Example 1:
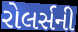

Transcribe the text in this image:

રોલર્સની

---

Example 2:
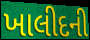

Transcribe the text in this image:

ખાલીદની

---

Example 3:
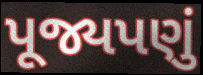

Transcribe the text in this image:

પૂજ્યપણું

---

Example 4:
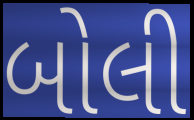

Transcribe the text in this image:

બોલી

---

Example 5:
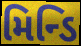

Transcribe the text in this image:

મિન્ડિ